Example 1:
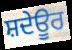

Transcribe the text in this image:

ਸ਼ਦੇਊਰ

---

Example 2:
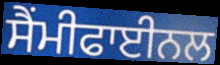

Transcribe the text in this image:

ਸੈਂਮੀਫਾਈਨਲ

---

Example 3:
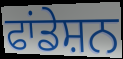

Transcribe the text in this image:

ਫਾਂਡੇਸ਼ਨ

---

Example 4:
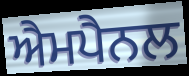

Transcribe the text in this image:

ਐਮਪੈਨਲ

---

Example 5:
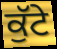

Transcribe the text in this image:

ਕੁੱਟੇ